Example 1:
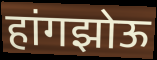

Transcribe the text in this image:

हांगझोऊ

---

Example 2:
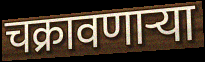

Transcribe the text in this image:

चक्रावणाऱ्या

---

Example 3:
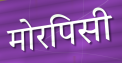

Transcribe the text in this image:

मोरपिसी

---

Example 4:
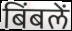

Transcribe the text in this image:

बिंबलें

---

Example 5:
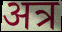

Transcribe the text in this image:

अत्र